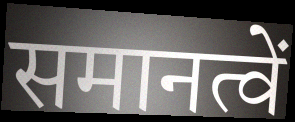
समानत्वें